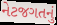
નેટજગતનું